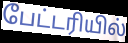
பேட்டரியில்